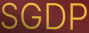
SGDP